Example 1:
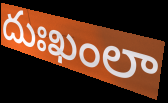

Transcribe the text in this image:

దుఃఖంలా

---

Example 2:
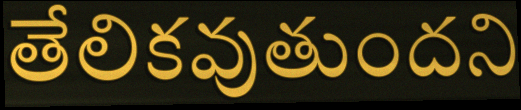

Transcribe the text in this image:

తేలికవుతుందని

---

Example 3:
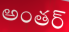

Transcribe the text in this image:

అంతర్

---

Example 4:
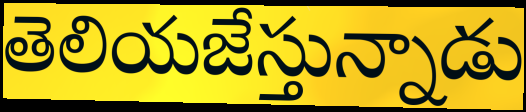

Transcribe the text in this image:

తెలియజేస్తున్నాడు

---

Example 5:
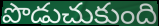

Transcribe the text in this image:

పొడుచుకుంది